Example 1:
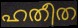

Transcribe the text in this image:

ഹതീത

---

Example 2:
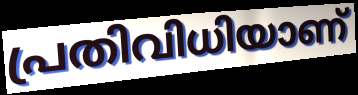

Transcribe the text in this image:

പ്രതിവിധിയാണ്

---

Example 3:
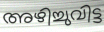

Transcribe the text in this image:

അഴിച്ചുവിട്ട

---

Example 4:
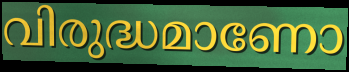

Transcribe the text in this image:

വിരുദ്ധമാണോ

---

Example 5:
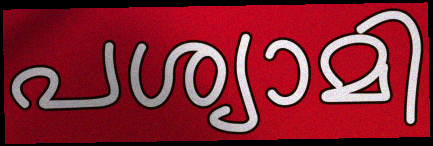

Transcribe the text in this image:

പശ്യാമി